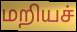
மறியச்